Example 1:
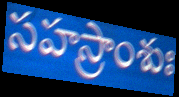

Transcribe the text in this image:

సహస్రాంశుః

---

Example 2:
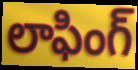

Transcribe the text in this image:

లాఫింగ్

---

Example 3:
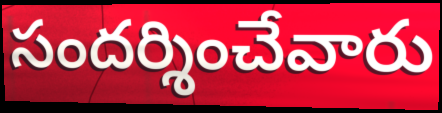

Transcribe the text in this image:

సందర్శించేవారు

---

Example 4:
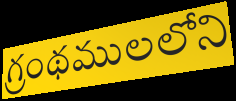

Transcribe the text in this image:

గ్రంథములలోని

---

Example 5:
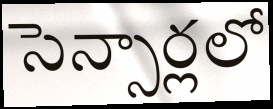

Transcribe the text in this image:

సెన్సార్లలో